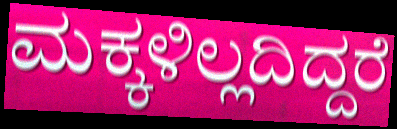
ಮಕ್ಕಳಿಲ್ಲದಿದ್ದರೆ